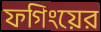
ফগিংয়ের